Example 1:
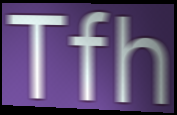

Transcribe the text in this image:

Tfh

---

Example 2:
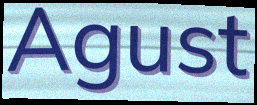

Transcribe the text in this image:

Agust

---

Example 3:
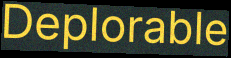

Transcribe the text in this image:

Deplorable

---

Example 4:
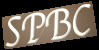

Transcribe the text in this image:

SPBC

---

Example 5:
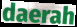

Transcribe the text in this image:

daerah